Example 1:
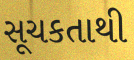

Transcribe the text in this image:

સૂચકતાથી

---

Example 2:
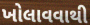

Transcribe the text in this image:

ખોલાવવાથી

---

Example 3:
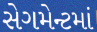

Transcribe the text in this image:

સેગમેન્ટમાં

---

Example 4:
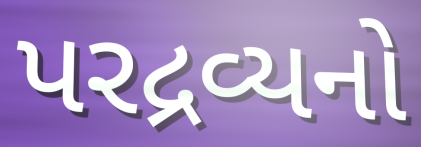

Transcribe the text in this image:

પરદ્રવ્યનો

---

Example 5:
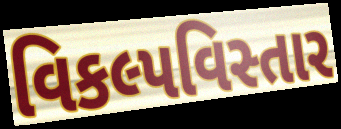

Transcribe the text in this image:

વિકલ્પવિસ્તાર